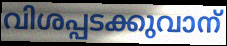
വിശപ്പടക്കുവാന്